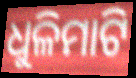
ଧୁଳିମାଟି